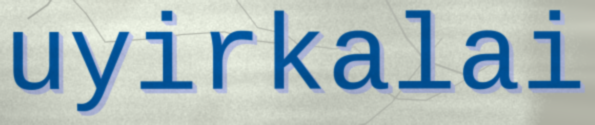
uyirkalai